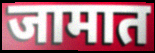
जामात